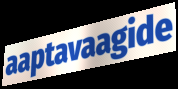
aaptavaagide